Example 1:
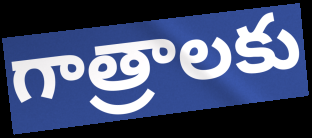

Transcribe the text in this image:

గాత్రాలకు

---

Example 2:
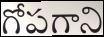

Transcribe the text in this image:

గోపగాని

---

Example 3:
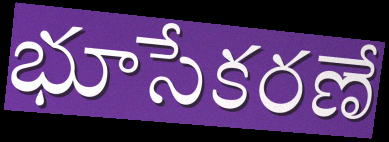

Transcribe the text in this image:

భూసేకరణే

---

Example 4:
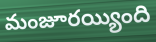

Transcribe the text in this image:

మంజూరయ్యింది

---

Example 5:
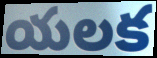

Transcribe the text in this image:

యలక